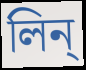
লিন্